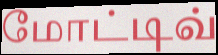
மோட்டிவ்